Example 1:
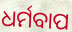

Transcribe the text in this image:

ଧର୍ମବାପ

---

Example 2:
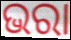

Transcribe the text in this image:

ଭରା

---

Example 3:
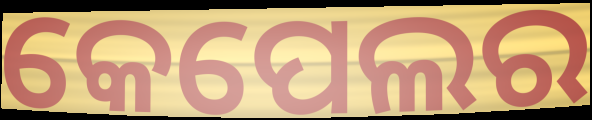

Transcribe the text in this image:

କେପେଲର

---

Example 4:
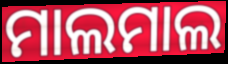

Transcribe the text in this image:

ମାଲମାଲ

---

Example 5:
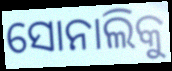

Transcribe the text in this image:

ସୋନାଲିକୁ